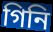
গিনি